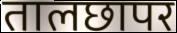
तालछापर